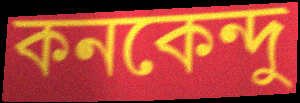
কনকেন্দু